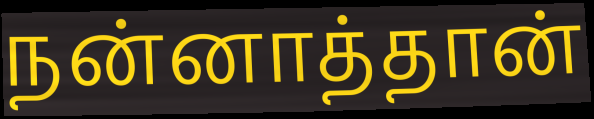
நன்னாத்தான்